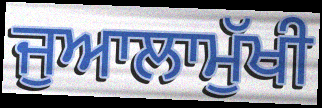
ਜੁਆਲਾਮੁੱਖੀ